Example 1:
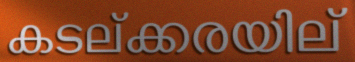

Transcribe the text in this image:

കടല്ക്കരയില്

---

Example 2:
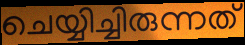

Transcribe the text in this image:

ചെയ്യിച്ചിരുന്നത്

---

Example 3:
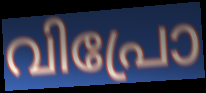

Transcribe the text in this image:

വിപ്രോ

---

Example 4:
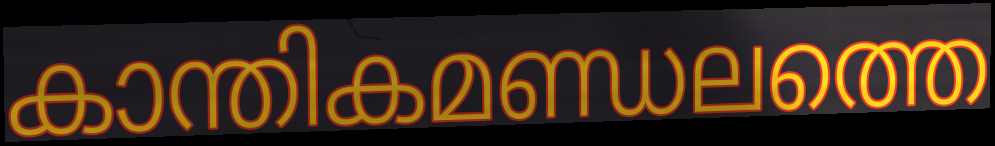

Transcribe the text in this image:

കാന്തികമണ്ഡലത്തെ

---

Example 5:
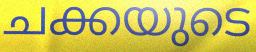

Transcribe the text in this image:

ചക്കയുടെ